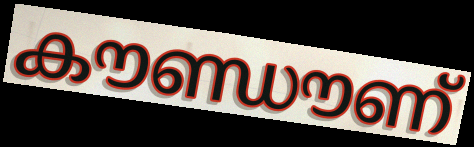
കൗണ്ഡൗണ്